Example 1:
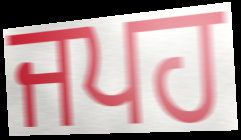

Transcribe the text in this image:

ਜਪਹ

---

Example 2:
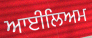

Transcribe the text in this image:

ਆਈਲਿਅਮ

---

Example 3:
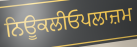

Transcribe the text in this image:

ਨਿਊਕਲੀਓਪਲਾਜ਼ਮ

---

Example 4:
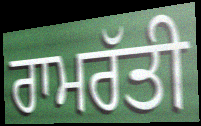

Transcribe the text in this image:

ਰਾਮਰੱਤੀ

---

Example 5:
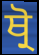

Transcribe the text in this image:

ਥ੍ਰੋ